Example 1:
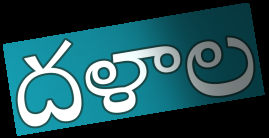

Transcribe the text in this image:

దళాల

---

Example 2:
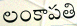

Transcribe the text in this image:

లంకాపతి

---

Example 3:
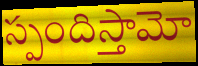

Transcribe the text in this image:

స్పందిస్తామో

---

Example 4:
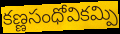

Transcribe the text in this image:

కణ్ణసంధోవికమ్పి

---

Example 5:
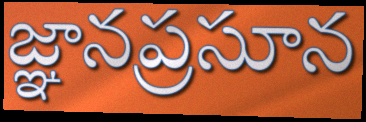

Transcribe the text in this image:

జ్ఞానప్రసూన